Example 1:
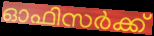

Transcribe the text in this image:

ഓഫിസർക്ക്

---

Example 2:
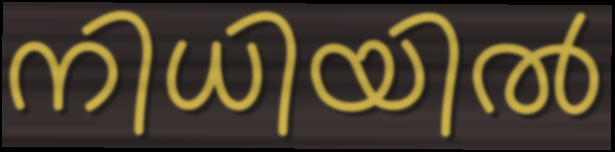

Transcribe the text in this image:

നിധിയിൽ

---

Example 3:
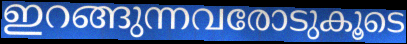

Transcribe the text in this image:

ഇറങ്ങുന്നവരോടുകൂടെ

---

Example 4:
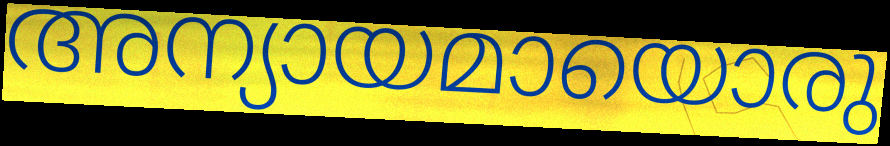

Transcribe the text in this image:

അന്യായമായൊരു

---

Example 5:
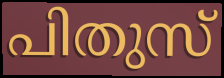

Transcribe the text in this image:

പിതുസ്